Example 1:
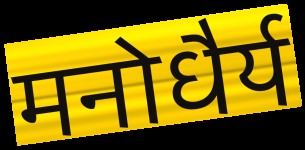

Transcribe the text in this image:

मनोधैर्य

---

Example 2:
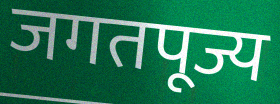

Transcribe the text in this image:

जगतपूज्य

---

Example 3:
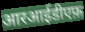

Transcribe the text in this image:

आरआईडीएफ़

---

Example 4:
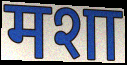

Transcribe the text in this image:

मशा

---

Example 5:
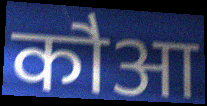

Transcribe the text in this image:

कौआ